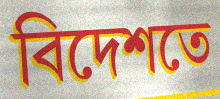
বিদেশতে